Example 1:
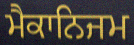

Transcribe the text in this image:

ਮੈਕਾਨਿਜਮ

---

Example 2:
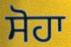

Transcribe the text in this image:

ਸੋਹਾ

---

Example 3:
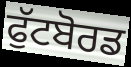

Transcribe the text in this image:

ਫੁੱਟਬੋਰਡ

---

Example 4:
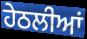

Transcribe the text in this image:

ਹੇਠਲੀਆਂ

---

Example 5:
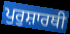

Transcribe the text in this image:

ਪੁਰੁਸ਼ਾਰਥੀ